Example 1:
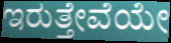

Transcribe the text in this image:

ಇರುತ್ತೇವೆಯೇ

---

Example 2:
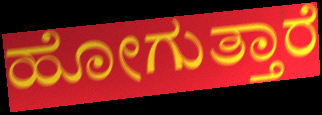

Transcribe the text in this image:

ಹೋಗುತ್ತಾರೆ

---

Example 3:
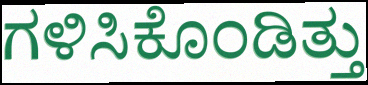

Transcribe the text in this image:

ಗಳಿಸಿಕೊಂಡಿತ್ತು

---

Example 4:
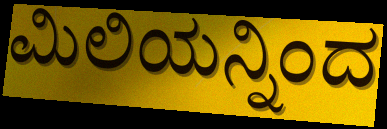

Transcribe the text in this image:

ಮಿಲಿಯನ್ನಿಂದ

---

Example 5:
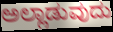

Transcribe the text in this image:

ಅಲ್ಲಾಡುವುದು